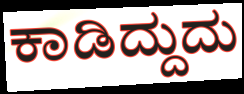
ಕಾಡಿದ್ದುದು